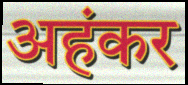
अहंकर